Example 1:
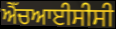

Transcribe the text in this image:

ਐੱਚਆਈਸੀਸੀ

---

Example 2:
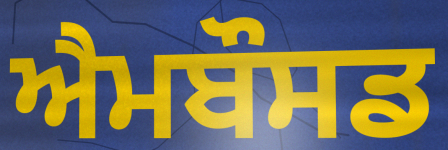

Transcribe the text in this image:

ਐਮਬੌਸਡ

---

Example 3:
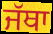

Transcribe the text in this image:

ਜੱਥਾ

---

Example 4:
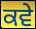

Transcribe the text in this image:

ਕਵੇ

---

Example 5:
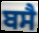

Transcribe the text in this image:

ਬਸੈ